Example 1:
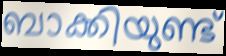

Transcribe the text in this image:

ബാക്കിയുണ്ട്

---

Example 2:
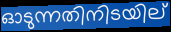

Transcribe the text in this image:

ഓടുന്നതിനിടയില്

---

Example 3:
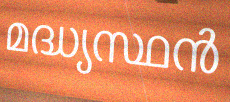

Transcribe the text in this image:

മദ്ധ്യസ്ഥൻ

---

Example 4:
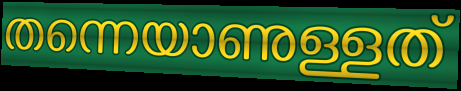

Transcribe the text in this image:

തന്നെയാണുള്ളത്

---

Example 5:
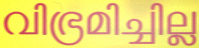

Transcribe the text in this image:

വിഭ്രമിച്ചില്ല